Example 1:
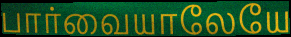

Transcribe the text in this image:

பார்வையாலேயே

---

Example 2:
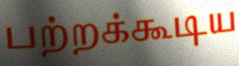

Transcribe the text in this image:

பற்றக்கூடிய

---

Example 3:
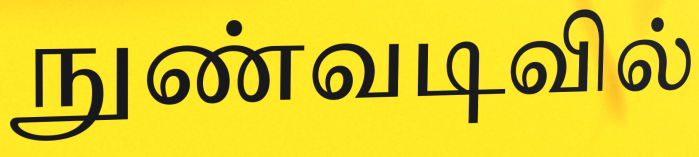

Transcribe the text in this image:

நுண்வடிவில்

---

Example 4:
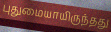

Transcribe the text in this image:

புதுமையாயிருந்தது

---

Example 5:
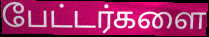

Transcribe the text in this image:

பேட்டர்களை